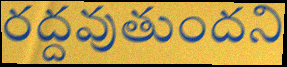
రద్దవుతుందని